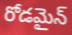
రోడమైన్